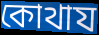
কোথায